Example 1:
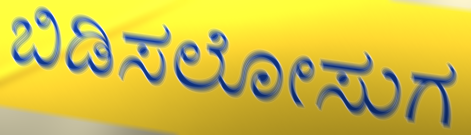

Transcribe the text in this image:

ಬಿಡಿಸಲೋಸುಗ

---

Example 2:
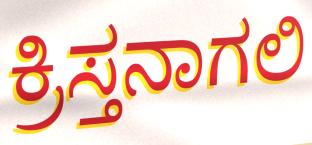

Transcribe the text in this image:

ಕ್ರಿಸ್ತನಾಗಲಿ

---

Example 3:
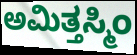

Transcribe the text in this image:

ಅಮಿತ್ತಸ್ಮಿಂ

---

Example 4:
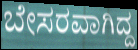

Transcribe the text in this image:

ಬೇಸರವಾಗಿದ್ದ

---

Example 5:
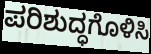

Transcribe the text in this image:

ಪರಿಶುದ್ಧಗೊಳಿಸಿ